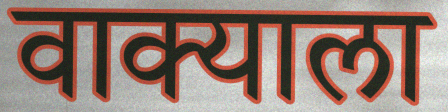
वाक्याला